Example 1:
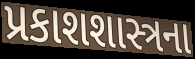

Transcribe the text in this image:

પ્રકાશશાસ્ત્રના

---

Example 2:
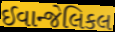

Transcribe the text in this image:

ઈવાન્જેલિકલ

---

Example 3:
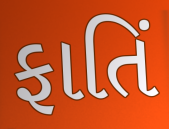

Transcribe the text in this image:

ફાતિં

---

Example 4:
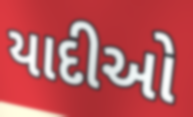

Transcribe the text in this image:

યાદીઓ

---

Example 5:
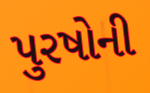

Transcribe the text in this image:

પુરષોની